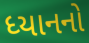
ધ્યાનનો